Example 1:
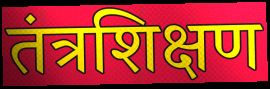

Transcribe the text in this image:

तंत्रशिक्षण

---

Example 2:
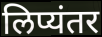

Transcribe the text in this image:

लिप्यंतर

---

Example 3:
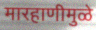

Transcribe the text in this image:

मारहाणीमुळे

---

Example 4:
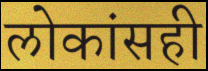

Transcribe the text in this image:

लोकांसही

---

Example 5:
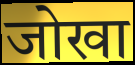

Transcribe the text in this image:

जोखा